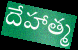
దేహాత్మ